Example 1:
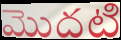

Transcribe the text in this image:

మొదటి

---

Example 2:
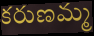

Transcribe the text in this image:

కరుణమ్మ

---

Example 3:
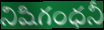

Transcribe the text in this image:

నిషిగంధనీ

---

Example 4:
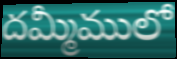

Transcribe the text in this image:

దమ్మీములో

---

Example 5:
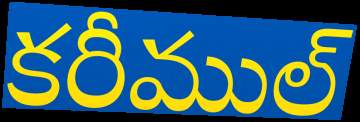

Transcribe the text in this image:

కరీముల్